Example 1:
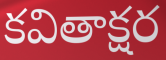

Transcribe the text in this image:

కవితాక్షర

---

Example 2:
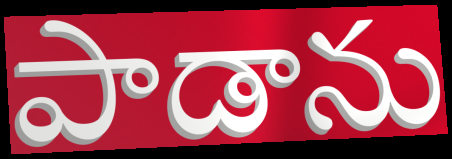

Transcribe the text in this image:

పాడాను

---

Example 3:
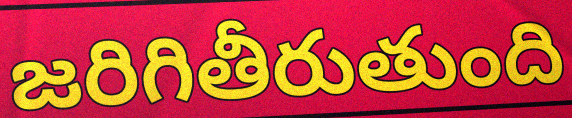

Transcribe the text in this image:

జరిగితీరుతుంది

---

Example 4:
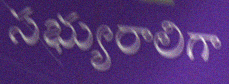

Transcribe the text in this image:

సభ్యురాలిగా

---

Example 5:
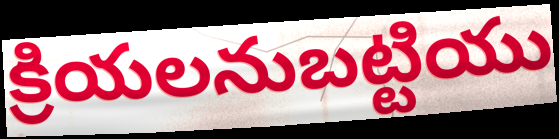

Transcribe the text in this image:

క్రియలనుబట్టియు